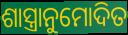
ଶାସ୍ତ୍ରାନୁମୋଦିତ